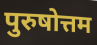
पुरुषोत्तम